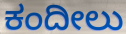
ಕಂದೀಲು